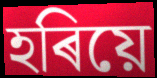
হৰিয়ে